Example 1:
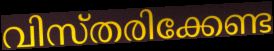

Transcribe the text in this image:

വിസ്തരിക്കേണ്ട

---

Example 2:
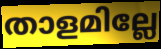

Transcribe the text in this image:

താളമില്ലേ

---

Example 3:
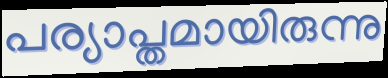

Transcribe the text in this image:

പര്യാപ്തമായിരുന്നു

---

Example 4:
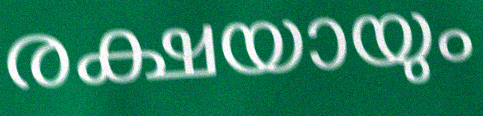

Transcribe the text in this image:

രക്ഷയായും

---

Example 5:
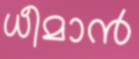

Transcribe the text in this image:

ധീമാൻ